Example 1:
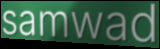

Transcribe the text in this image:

samwad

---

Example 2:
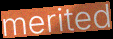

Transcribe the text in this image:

merited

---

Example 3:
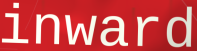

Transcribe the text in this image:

inward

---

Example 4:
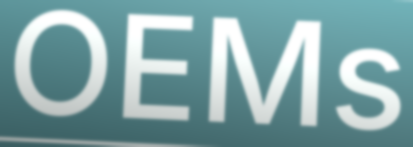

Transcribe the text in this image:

OEMs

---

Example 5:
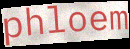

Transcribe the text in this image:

phloem